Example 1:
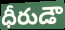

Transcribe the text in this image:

ధీరుడౌ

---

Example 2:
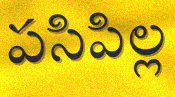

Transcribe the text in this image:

పసిపిల్ల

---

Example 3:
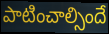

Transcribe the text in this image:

పాటించాల్సిందే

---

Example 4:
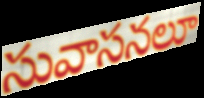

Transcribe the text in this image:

సువాసనలూ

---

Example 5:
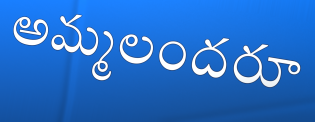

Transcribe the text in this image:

అమ్మలందరూ